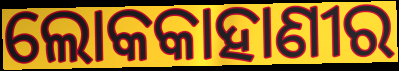
ଲୋକକାହାଣୀର